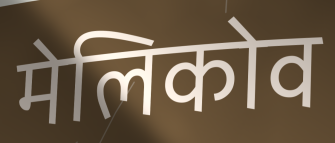
मेलिकोव